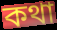
কথা